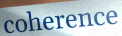
coherence